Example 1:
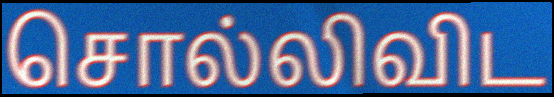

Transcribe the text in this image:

சொல்லிவிட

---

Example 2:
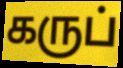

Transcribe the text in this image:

கருப்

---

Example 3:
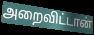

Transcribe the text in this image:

அறைவிட்டான்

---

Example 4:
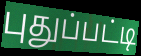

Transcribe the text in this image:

புதுப்பட்டி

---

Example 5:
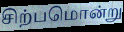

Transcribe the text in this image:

சிற்பமொன்று